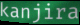
kanjira